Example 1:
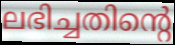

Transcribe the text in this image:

ലഭിച്ചതിന്റെ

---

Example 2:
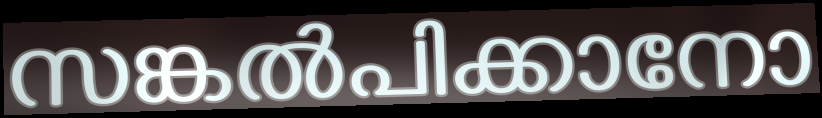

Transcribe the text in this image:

സങ്കൽപിക്കാനോ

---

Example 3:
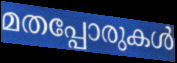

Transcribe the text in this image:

മതപ്പോരുകൾ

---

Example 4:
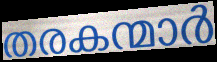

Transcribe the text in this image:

തരകന്മാർ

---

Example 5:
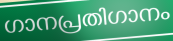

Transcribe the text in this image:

ഗാനപ്രതിഗാനം